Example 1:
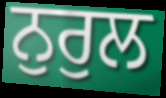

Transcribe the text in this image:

ਨੁਰੁਲ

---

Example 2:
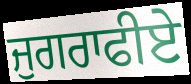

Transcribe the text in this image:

ਜੁਗਰਾਫੀਏ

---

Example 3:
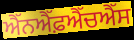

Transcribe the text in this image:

ਐੱਨਐੱਫ਼ਐੱਚਐੱਸ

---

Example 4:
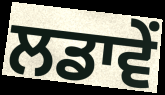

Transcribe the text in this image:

ਲਡਾਵੇਂ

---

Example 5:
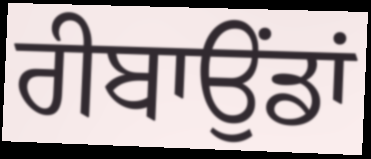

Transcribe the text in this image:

ਰੀਬਾਉਂਡਾਂ